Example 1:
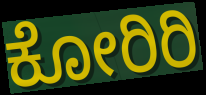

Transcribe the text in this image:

ಕೋರಿರಿ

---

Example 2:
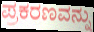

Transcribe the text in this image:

ಪ್ರಕರಣವನ್ನು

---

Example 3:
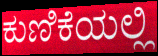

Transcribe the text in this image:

ಕುಣಿಕೆಯಲ್ಲಿ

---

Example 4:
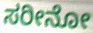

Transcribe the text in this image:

ಸರೀನೋ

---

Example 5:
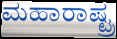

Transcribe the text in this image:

ಮಹಾರಾಷ್ಟ್ರ